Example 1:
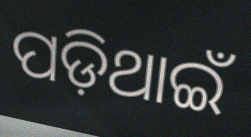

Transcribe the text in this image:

ପଡ଼ିଥାଇଁ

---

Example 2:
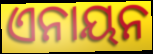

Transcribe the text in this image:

ଏନାୟନ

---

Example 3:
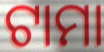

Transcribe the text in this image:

ଟାମା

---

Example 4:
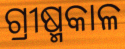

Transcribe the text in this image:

ଗ୍ରୀଷ୍ମକାଳ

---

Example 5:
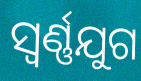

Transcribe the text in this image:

ସ୍ଵର୍ଣ୍ଣଯୁଗ